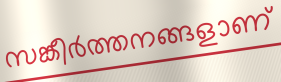
സങ്കീർത്തനങ്ങളാണ്